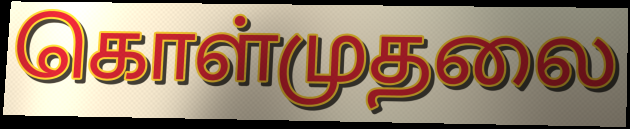
கொள்முதலை